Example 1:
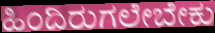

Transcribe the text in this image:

ಹಿಂದಿರುಗಲೇಬೇಕು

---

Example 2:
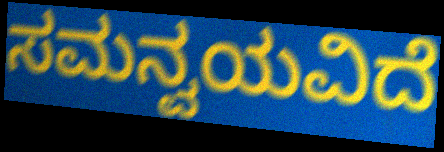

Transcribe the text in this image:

ಸಮನ್ವಯವಿದೆ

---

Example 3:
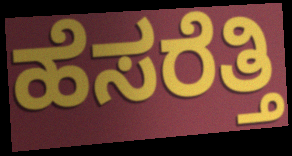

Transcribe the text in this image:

ಹೆಸರೆತ್ತಿ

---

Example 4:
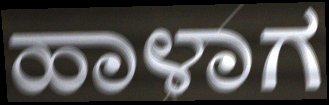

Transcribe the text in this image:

ಹಾಳಾಗ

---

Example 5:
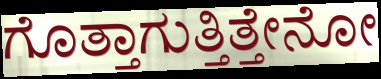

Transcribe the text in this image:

ಗೊತ್ತಾಗುತ್ತಿತ್ತೇನೋ